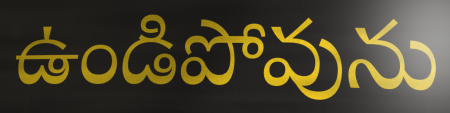
ఉండిపోవును